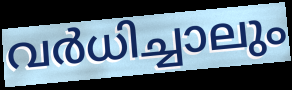
വർധിച്ചാലും